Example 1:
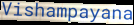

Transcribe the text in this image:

Vishampayana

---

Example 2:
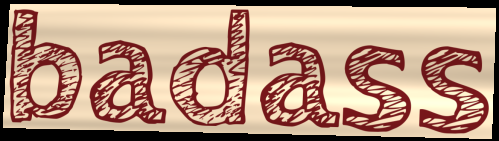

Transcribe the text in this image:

badass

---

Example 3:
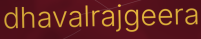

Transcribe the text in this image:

dhavalrajgeera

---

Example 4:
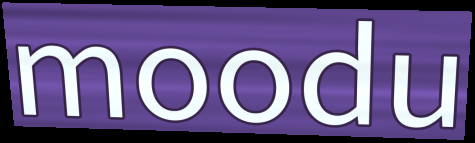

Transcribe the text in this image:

moodu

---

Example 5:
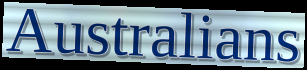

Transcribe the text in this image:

Australians